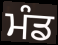
ਮੰਡ